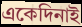
একেদিনাই